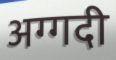
अग्गदी